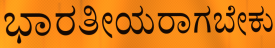
ಭಾರತೀಯರಾಗಬೇಕು